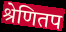
श्रेणितप